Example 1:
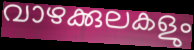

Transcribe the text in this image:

വാഴക്കുലകളും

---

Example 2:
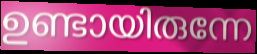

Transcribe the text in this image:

ഉണ്ടായിരുന്നേ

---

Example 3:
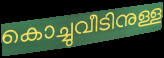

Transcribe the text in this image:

കൊച്ചുവീടിനുള്ള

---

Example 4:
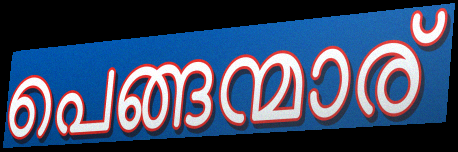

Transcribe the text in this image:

പെങ്ങന്മാര്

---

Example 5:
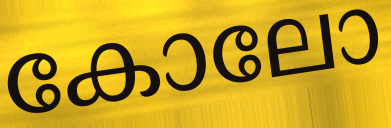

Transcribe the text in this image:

കോലോ